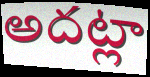
అదట్లా